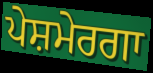
ਪੇਸ਼ਮੇਰਗਾ